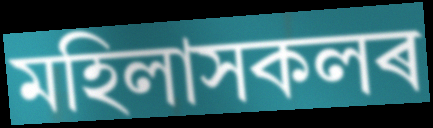
মহিলাসকলৰ